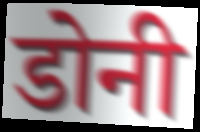
डोनी